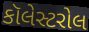
કૉલેસ્ટરોલ